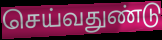
செய்வதுண்டு